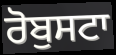
ਰੋਬੁਸਟਾ